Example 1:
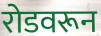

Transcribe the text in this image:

रोडवरून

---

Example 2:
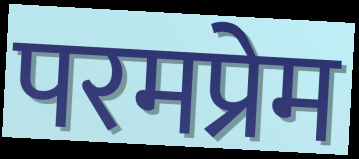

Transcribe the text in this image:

परमप्रेम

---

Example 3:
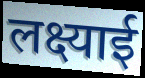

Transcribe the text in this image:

लक्ष्याई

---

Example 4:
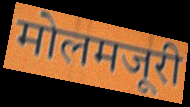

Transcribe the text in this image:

मोलमजूरी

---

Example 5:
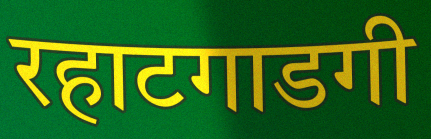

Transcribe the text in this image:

रहाटगाडगी